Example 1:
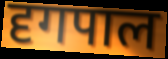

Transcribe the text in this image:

दृगपाल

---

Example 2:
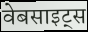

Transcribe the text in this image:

वेबसाइट्स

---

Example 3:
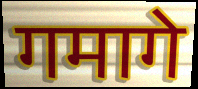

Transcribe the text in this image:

गमागे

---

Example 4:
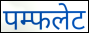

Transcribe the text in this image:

पम्फलेट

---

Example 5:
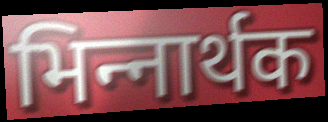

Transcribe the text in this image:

भिन्नार्थक